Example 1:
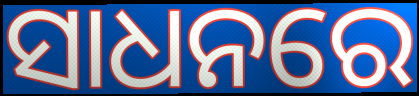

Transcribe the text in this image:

ସାଧନରେ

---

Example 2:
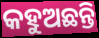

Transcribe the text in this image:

କହୁଅଛନ୍ତି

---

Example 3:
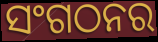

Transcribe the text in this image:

ସଂଗଠନର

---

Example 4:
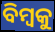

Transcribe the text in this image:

ବିମ୍ବକୁ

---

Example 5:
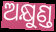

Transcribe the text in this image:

ଅକ୍ଷୁଣ୍ଡ